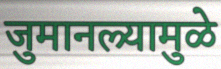
जुमानल्यामुळे